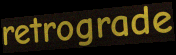
retrograde